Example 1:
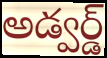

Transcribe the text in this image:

అడ్వర్డ్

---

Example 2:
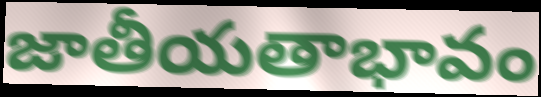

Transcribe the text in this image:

జాతీయతాభావం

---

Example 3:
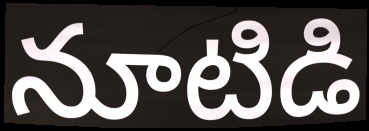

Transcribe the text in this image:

నూటిడి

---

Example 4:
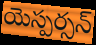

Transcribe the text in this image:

యెస్పర్సన్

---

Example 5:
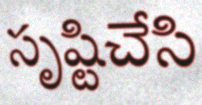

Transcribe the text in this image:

సృష్టిచేసి